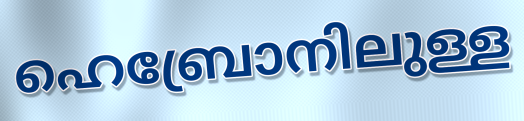
ഹെബ്രോനിലുള്ള